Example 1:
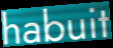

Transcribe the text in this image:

habuit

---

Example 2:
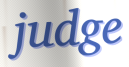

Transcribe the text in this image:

judge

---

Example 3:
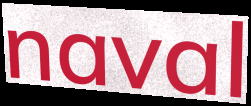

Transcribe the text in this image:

naval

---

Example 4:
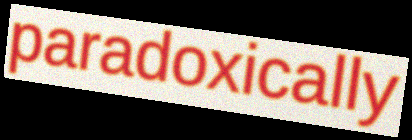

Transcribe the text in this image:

paradoxically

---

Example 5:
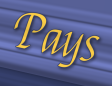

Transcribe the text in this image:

Pays